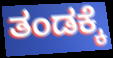
ತಂಡಕ್ಕೆ